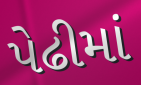
પેઢીમાં